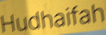
Hudhaifah